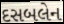
દસબલેન